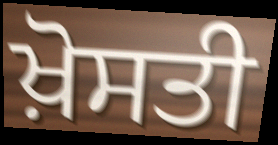
ਖ਼ੋਸਤੀ